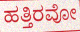
ಹತ್ತಿರವೋ